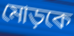
মোড়কে